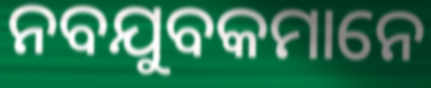
ନବଯୁବକମାନେ